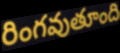
రింగవుతూంది